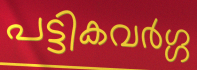
പട്ടികവർഗ്ഗ